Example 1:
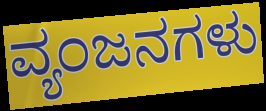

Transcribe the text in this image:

ವ್ಯಂಜನಗಳು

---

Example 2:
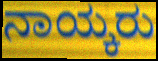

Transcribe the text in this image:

ನಾಯ್ಕರು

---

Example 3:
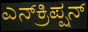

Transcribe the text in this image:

ಎನ್‌ಕ್ರಿಪ್ಷನ್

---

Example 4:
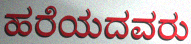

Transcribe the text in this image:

ಹರೆಯದವರು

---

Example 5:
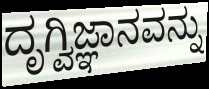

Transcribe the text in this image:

ದೃಗ್ವಿಜ್ಞಾನವನ್ನು